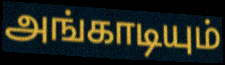
அங்காடியும்